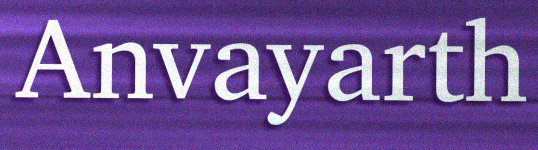
Anvayarth